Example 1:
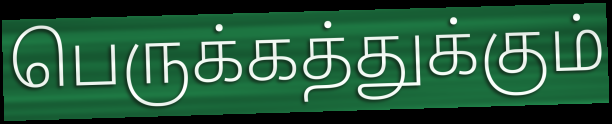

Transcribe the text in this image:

பெருக்கத்துக்கும்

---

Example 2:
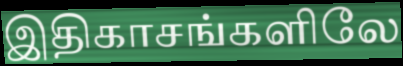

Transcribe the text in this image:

இதிகாசங்களிலே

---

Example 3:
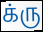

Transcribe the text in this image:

க்ரு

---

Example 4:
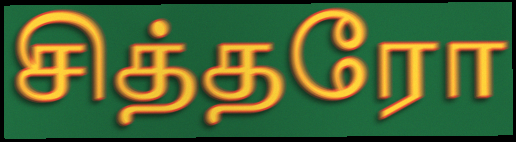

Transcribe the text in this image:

சித்தரோ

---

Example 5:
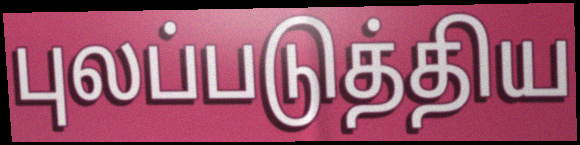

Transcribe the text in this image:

புலப்படுத்திய